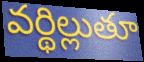
వర్థిల్లుతూ